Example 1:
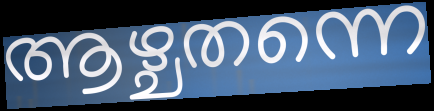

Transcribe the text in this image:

ആഴ്ചതന്നെ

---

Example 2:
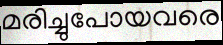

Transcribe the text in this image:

മരിച്ചുപോയവരെ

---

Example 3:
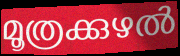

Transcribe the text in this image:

മൂത്രക്കുഴൽ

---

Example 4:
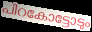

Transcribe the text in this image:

പിറകോട്ടോടും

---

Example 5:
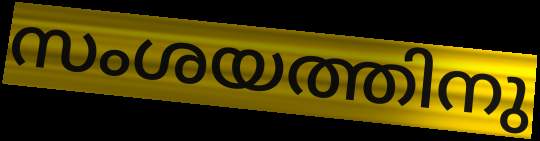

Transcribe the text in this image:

സംശയത്തിനു